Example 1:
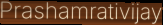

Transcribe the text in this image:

Prashamrativijay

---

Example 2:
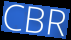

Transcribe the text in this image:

CBR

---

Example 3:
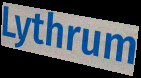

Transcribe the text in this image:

Lythrum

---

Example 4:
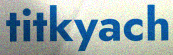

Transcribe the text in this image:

titkyach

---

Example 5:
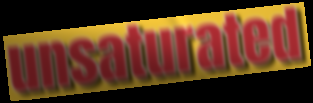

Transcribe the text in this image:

unsaturated